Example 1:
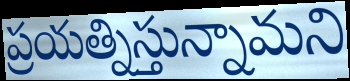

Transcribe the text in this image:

ప్రయత్నిస్తున్నామని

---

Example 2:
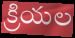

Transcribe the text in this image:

క్రియల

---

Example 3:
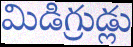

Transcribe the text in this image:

మిడిగ్రుడ్లు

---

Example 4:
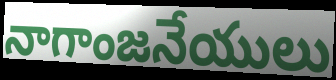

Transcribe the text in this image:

నాగాంజనేయులు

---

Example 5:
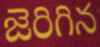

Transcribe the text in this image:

జెరిగిన